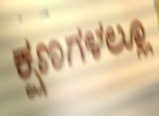
ಕ್ಷಣಗಳಲ್ಲೂ